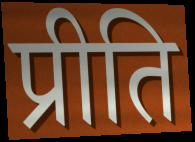
प्रीति